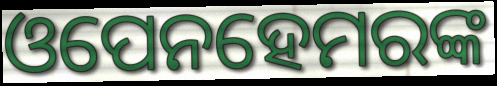
ଓପେନହେମରଙ୍କ